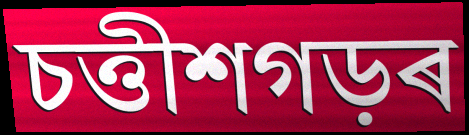
চত্তীশগড়ৰ